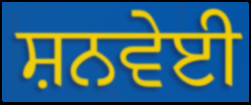
ਸ਼ਨਵੇਈ